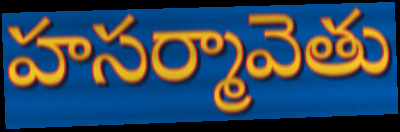
హసర్మావెతు